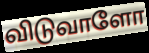
விடுவாளோ